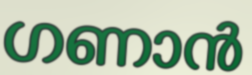
ഗണാൻ